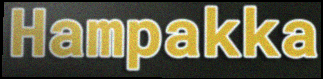
Hampakka